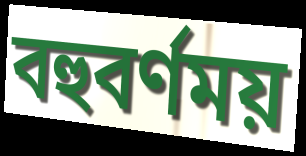
বহুবর্ণময়